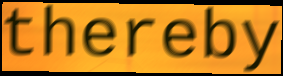
thereby